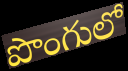
పొంగులో